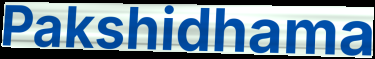
Pakshidhama